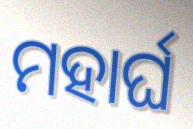
ମହାର୍ଘ